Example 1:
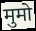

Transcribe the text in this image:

मुमो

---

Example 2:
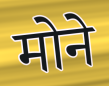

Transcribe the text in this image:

मोने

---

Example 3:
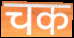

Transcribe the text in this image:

चक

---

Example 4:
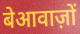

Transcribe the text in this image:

बेआवाज़ों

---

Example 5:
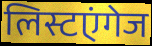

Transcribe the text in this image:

लिस्टएंगेज